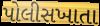
પોલીસખાતા